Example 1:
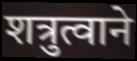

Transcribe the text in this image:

शत्रुत्वाने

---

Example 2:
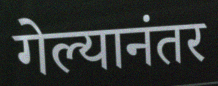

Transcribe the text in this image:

गेल्यानंतर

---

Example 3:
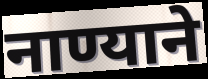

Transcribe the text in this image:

नाण्याने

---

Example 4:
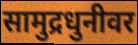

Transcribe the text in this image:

सामुद्रधुनीवर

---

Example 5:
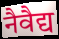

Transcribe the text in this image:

नैवैद्य